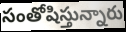
సంతోషిస్తున్నారు